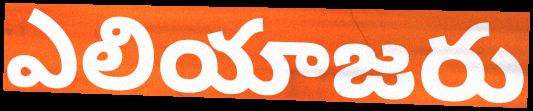
ఎలియాజరు